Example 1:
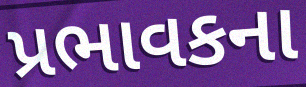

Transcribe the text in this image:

પ્રભાવકના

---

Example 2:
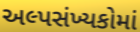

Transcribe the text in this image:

અલ્પસંખ્યકોમાં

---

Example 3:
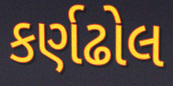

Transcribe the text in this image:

કર્ણઢોલ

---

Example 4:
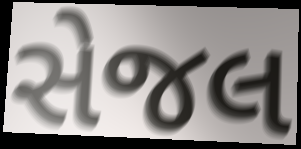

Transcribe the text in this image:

સેજલ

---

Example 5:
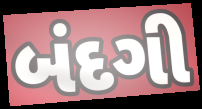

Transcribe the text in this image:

બંદગી